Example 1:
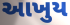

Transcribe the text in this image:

આખુય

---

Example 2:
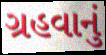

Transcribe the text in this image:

ગ્રહવાનું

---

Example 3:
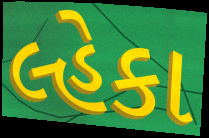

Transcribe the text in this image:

લ્હેકા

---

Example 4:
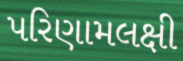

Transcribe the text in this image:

પરિણામલક્ષી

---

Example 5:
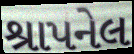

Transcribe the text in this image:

શ્રાપનેલ